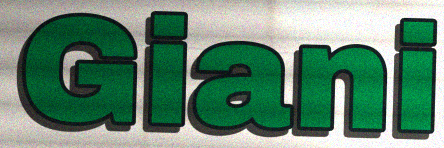
Giani